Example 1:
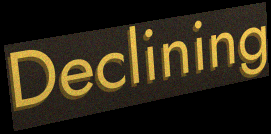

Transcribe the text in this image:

Declining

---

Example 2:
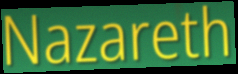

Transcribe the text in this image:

Nazareth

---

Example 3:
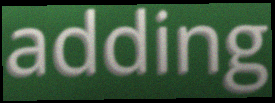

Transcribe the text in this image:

adding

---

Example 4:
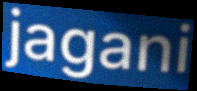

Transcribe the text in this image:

jagani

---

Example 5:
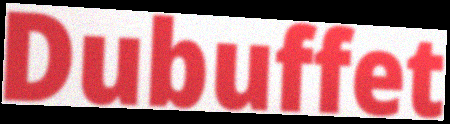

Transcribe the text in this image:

Dubuffet